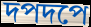
দপদপে